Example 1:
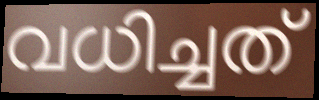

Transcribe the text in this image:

വധിച്ചത്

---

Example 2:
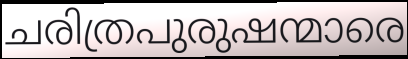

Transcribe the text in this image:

ചരിത്രപുരുഷന്മാരെ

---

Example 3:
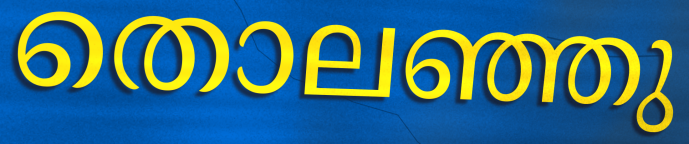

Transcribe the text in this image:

തൊലഞ്ഞു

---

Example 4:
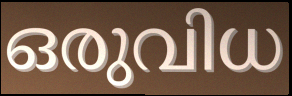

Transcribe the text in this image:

ഒരുവിധ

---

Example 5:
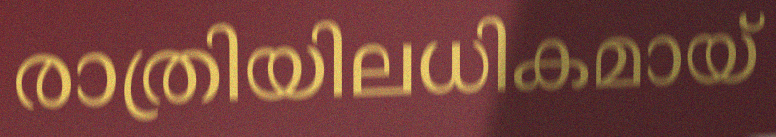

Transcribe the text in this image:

രാത്രിയിലധികമായ്